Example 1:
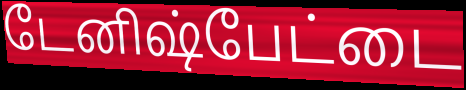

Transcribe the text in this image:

டேனிஷ்பேட்டை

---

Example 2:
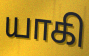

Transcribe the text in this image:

யாகி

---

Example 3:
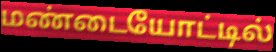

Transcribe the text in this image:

மண்டையோட்டில்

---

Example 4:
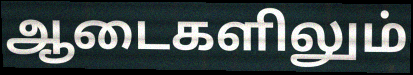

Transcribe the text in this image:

ஆடைகளிலும்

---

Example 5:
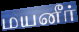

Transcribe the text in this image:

மயனீர்